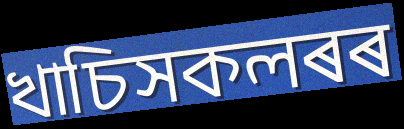
খাচিসকলৰৰ